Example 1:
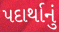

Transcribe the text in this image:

પદાર્થાનું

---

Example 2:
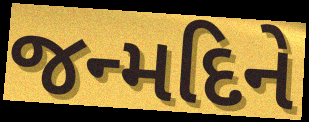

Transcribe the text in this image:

જન્મદિને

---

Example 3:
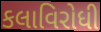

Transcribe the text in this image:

કલાવિરોધી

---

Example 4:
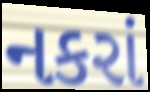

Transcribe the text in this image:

નકરાં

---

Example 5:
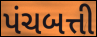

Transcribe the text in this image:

પંચબત્તી